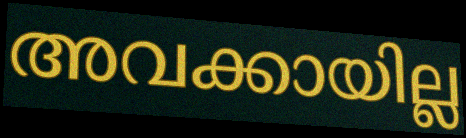
അവക്കായില്ല